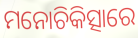
ମନୋଚିକିତ୍ସାରେ